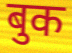
बुक